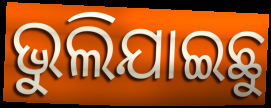
ଭୁଲିଯାଇଛୁ